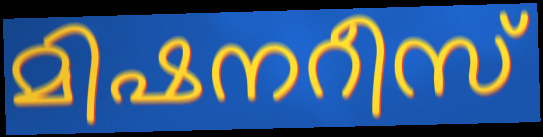
മിഷനറീസ്